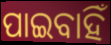
ପାଇବାହିଁ